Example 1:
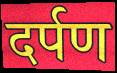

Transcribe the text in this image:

दर्पण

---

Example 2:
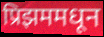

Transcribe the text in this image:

प्रिझममधून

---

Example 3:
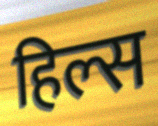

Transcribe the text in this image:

हिल्स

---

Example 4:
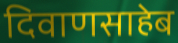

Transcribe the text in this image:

दिवाणसाहेब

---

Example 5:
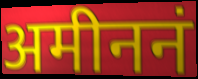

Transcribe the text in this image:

अमीननं